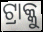
ଟ୍ରାକ୍କୁ